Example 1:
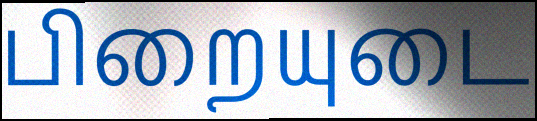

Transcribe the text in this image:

பிறையுடை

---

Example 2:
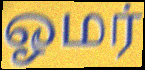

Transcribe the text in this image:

ஓமர்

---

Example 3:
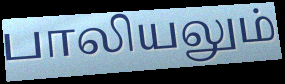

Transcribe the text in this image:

பாலியலும்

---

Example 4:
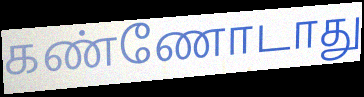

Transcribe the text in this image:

கண்ணோடாது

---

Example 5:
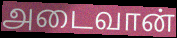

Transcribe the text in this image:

அடைவான்